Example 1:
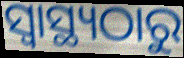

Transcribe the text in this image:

ସ୍ବାସ୍ଥ୍ୟଠାରୁ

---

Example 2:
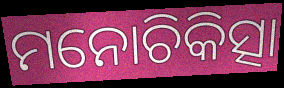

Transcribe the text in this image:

ମନୋଚିକିତ୍ସା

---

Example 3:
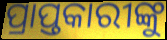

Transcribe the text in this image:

ପ୍ରାପ୍ତକାରୀଙ୍କୁ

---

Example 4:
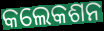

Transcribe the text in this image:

କଲେକଶନ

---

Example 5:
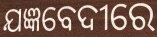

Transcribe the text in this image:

ଯଜ୍ଞବେଦୀରେ